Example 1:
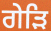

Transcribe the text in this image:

ਗੇੜਿ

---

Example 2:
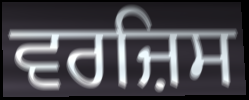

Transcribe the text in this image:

ਵਰਜ਼ਿਸ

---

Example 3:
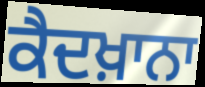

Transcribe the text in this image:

ਕੈਦਖ਼ਾਨਾ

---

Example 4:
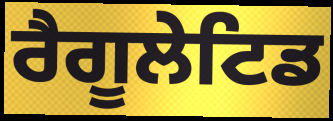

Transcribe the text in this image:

ਰੈਗੂਲੇਟਿਡ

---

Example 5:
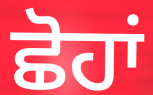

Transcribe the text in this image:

ਛੋਹਾਂ